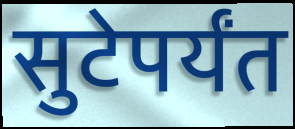
सुटेपर्यंत